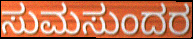
ಸುಮಸುಂದರ